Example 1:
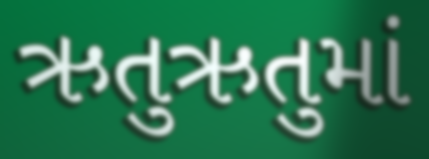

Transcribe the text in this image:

ઋતુઋતુમાં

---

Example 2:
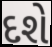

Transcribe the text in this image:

દશે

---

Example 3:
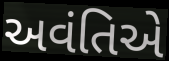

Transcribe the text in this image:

અવંતિએ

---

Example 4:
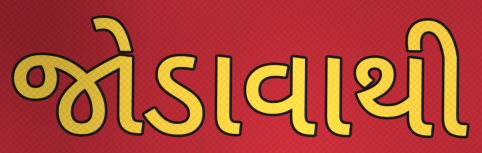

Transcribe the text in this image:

જોડાવાથી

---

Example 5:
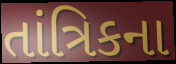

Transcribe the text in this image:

તાંત્રિકના